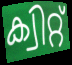
ക്വിറ്റ്